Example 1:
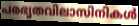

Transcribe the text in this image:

പരഭൃതവിലാസിനികൾ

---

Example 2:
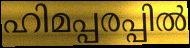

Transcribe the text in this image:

ഹിമപ്പരപ്പിൽ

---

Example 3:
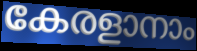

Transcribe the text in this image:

കേരളാനാം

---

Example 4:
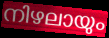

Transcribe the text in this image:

നിഴലായും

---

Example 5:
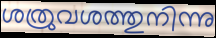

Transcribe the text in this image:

ശത്രുവശത്തുനിന്നു